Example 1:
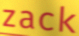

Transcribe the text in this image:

zack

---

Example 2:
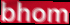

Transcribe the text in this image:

bhom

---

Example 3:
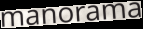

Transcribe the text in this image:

manorama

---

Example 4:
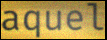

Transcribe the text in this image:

aquel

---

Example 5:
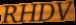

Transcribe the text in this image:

RHDV